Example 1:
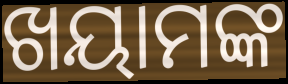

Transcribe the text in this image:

ଖୟାମଙ୍କ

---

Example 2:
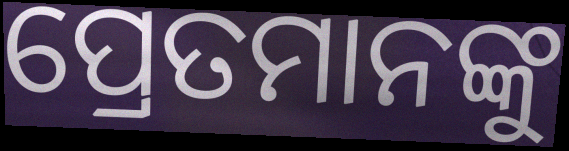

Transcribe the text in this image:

ପ୍ରେତମାନଙ୍କୁ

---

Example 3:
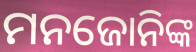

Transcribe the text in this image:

ମନଜୋନିଙ୍କ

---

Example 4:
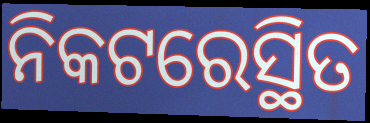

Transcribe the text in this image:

ନିକଟରେସ୍ଥିତ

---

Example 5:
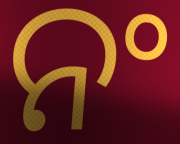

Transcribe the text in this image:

ନଂ